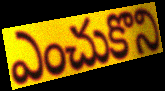
ఎంచుకొని